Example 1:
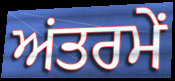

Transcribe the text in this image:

ਅਂਤਰਮੇਂ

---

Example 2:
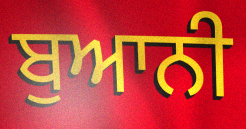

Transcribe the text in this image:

ਬੁਆਨੀ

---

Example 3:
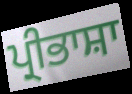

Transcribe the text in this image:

ਪ੍ਰੀਭਾਸ਼ਾ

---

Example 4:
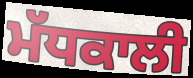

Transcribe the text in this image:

ਮੱਧਕਾਲੀ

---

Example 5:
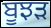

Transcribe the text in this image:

ਬੂਝੜ